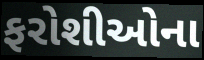
ફરોશીઓના